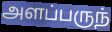
அளப்பருந்